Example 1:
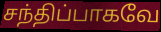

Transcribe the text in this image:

சந்திப்பாகவே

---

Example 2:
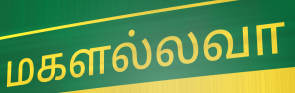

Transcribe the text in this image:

மகளல்லவா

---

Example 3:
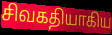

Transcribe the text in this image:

சிவகதியாகிய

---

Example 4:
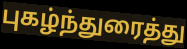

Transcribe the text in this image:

புகழ்ந்துரைத்து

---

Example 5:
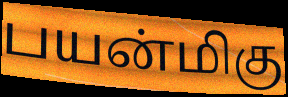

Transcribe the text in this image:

பயன்மிகு